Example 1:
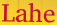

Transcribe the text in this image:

Lahe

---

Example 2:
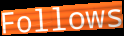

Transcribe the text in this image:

Follows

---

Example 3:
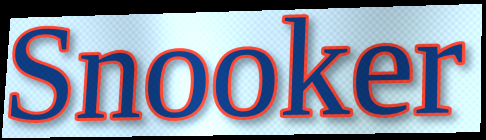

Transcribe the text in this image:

Snooker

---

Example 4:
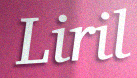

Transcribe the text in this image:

Liril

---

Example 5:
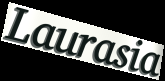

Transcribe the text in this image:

Laurasia